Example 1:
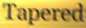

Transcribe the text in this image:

Tapered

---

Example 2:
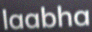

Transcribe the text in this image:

laabha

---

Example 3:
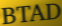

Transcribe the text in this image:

BTAD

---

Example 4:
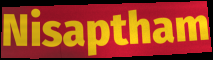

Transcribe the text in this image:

Nisaptham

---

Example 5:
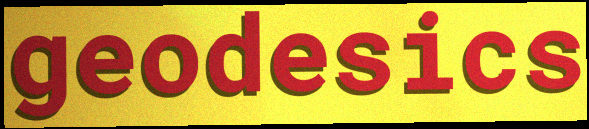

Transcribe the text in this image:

geodesics